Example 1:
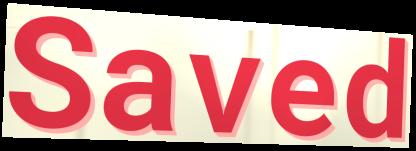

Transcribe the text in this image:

Saved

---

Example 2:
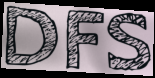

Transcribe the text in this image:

DFS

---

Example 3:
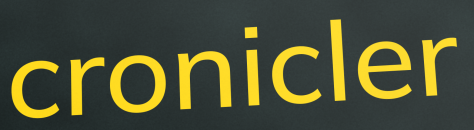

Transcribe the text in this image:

cronicler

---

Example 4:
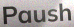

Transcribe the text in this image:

Paush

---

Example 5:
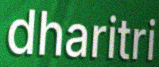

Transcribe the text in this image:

dharitri